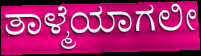
ತಾಳ್ಮೆಯಾಗಲೀ